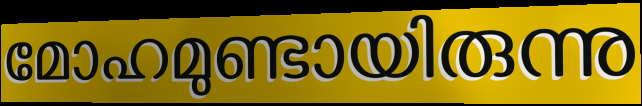
മോഹമുണ്ടായിരുന്നു